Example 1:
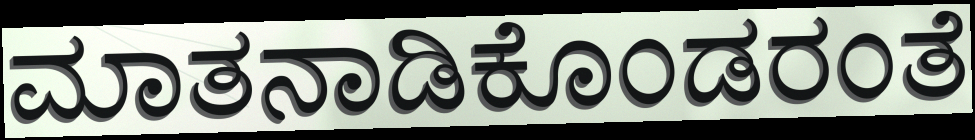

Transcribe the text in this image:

ಮಾತನಾಡಿಕೊಂಡರಂತೆ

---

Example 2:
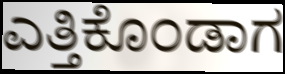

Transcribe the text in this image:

ಎತ್ತಿಕೊಂಡಾಗ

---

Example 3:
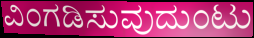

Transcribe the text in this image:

ವಿಂಗಡಿಸುವುದುಂಟು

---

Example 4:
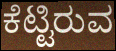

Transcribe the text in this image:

ಕೆಟ್ಟಿರುವ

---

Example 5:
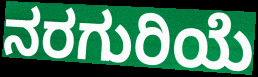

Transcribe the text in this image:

ನರಗುರಿಯೆ